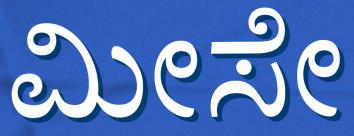
ಮೀಸೇ